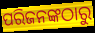
ପରିଜନଙ୍କଠାରୁ